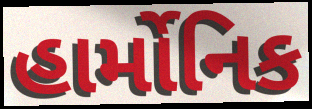
હાર્મોનિક